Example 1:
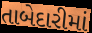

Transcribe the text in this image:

તાબેદારીમાં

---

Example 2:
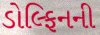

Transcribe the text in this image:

ડોલ્ફિનની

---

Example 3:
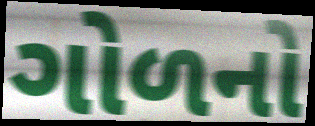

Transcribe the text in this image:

ગોળનો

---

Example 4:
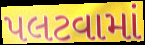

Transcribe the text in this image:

પલટવામાં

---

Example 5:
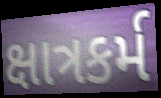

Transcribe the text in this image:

ક્ષાત્રકર્મ